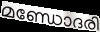
മണ്ഡോദരി